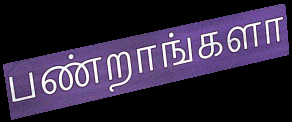
பண்றாங்களா